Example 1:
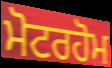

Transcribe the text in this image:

ਮੋਟਰਹੋਮ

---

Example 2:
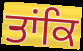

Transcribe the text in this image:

ਤਾਂਕਿ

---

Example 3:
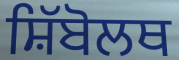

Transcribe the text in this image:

ਸ਼ਿੱਬੋਲਥ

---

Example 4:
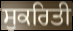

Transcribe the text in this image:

ਸੁਕਰਿਤੀ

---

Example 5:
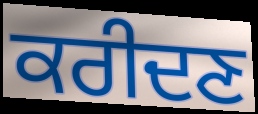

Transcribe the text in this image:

ਕਰੀਦਣ